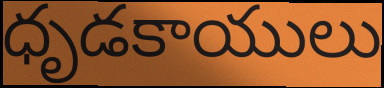
ధృడకాయులు